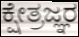
ಕ್ಷೇತ್ರಜ್ಞರ